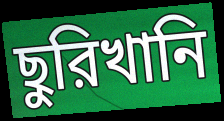
ছুরিখানি